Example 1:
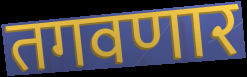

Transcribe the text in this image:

तगवणार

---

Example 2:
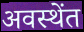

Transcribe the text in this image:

अवस्थेंत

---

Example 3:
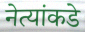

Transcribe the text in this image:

नेत्यांकडे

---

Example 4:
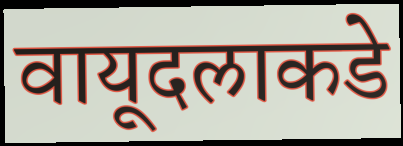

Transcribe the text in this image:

वायूदलाकडे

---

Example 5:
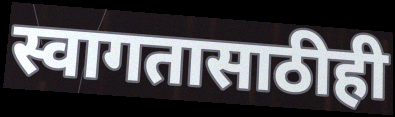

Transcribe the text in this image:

स्वागतासाठीही